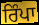
ਰਿੰਪਾ